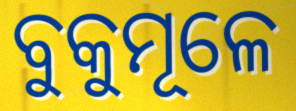
ବୁକୁମୂଳେ